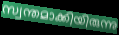
സ്വന്തമാക്കിയിരുന്നു